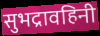
सुभद्रावहिनी